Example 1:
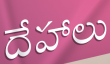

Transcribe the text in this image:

దేహాలు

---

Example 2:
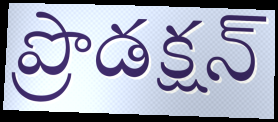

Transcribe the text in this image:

ప్రొడక్షన్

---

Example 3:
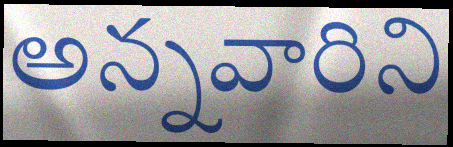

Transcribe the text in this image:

అన్నవారిని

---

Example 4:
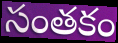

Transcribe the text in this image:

సంతకం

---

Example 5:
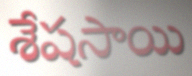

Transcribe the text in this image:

శేషసాయి